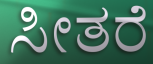
ಸೀತರೆ